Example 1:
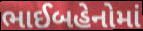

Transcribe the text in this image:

ભાઈબહેનોમાં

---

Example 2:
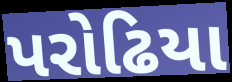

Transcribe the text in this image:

પરોઢિયા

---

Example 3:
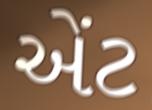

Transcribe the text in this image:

એંટ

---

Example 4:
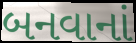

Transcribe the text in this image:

બનવાનાં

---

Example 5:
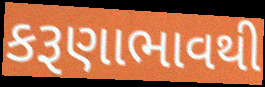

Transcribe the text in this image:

કરૂણાભાવથી